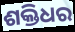
ଶକ୍ତିଧର